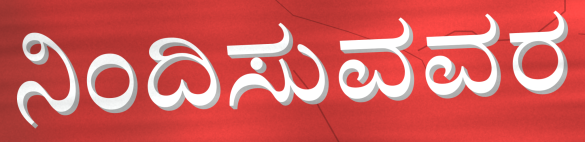
ನಿಂದಿಸುವವರ